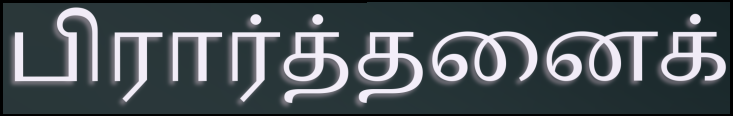
பிரார்த்தனைக்